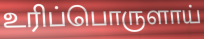
உரிப்பொருளாய்